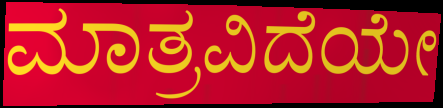
ಮಾತ್ರವಿದೆಯೇ